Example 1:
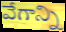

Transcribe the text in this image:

వేగాన్ని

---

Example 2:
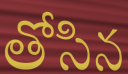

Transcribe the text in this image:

తోసిన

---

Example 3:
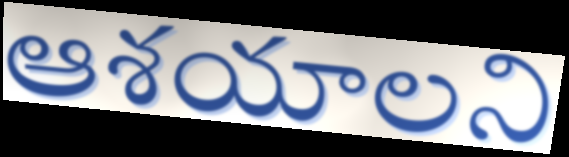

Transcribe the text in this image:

ఆశయాలని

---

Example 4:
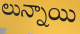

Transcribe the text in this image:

లున్నాయి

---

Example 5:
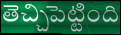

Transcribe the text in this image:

తెచ్చిపెట్టింది